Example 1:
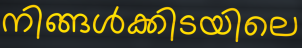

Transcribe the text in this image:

നിങ്ങൾക്കിടയിലെ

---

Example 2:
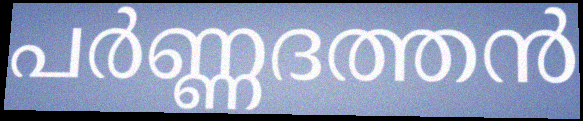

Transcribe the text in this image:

പർണ്ണദത്തൻ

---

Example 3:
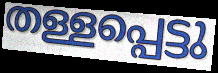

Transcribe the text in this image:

തള്ളപ്പെട്ടു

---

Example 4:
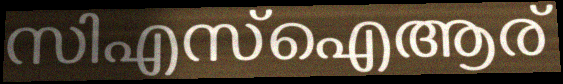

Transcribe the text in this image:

സിഎസ്ഐആര്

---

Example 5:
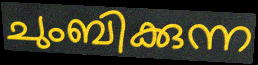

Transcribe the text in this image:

ചുംബിക്കുന്ന